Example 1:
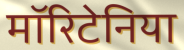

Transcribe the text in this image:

मॉरिटेनिया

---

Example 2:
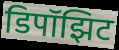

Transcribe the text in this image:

डिपॉझिट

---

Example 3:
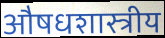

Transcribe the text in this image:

औषधशास्त्रीय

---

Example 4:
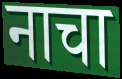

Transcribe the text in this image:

नाचा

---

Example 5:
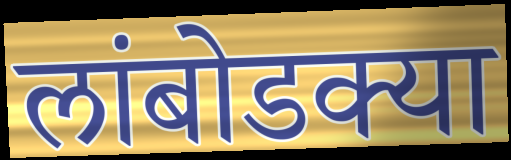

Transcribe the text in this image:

लांबोडक्या